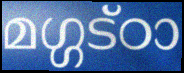
മഗ്ഗട്ഠാ